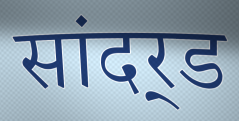
सांदर्ड